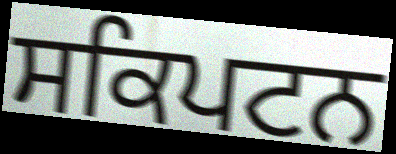
ਸਕਿਪਟਨ